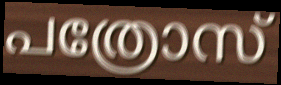
പത്രോസ്